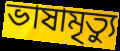
ভাষামৃত্যু